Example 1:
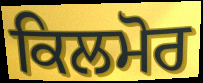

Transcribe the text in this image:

ਕਿਲਮੋਰ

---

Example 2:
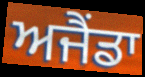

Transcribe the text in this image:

ਅਜੈਂਡਾ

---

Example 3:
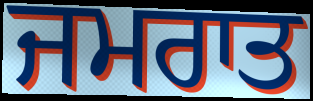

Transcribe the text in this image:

ਜਮਰਾਤ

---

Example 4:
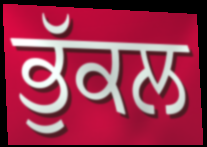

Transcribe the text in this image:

ਭੁੱਕਲ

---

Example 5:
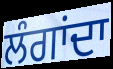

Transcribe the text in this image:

ਲੰਗਾਂਦਾ